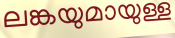
ലങ്കയുമായുള്ള